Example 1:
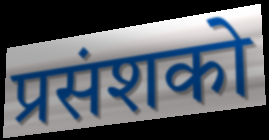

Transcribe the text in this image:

प्रसंशको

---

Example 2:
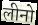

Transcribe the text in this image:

लीनो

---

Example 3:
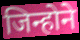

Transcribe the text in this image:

जिन्होने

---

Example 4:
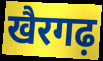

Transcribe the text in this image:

खैरगढ़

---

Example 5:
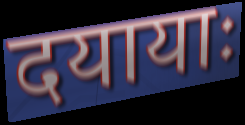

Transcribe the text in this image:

दयायाः